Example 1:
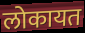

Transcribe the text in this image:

लोकायत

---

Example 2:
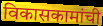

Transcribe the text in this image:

विकासकामांची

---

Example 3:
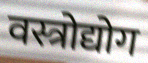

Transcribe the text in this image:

वस्त्रोद्योग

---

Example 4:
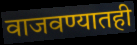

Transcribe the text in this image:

वाजवण्यातही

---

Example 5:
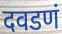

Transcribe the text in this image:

दवडणं